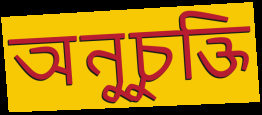
অনুচুক্তি